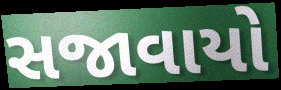
સજાવાયો